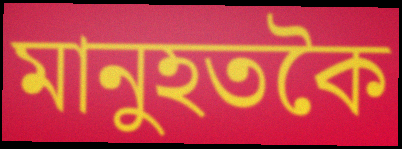
মানুহতকৈ